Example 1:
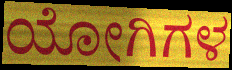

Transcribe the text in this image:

ಯೋಗಿಗಳ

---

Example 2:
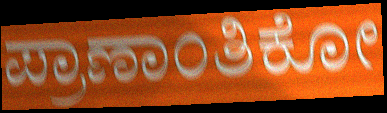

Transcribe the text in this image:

ಪ್ರಾಣಾಂತಿಕೋ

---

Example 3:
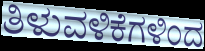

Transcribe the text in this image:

ತಿಳುವಳಿಕೆಗಳಿಂದ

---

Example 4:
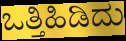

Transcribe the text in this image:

ಒತ್ತಿಹಿಡಿದು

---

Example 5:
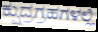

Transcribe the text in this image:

ಕ್ಷುದ್ರಗ್ರಹಗಳಲ್ಲಿ